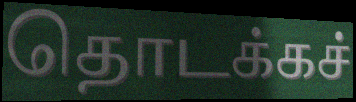
தொடக்கச்